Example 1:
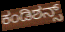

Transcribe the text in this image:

ಕಂಡಿಶನ್ಸ್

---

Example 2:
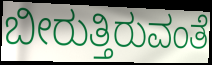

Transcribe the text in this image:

ಬೀರುತ್ತಿರುವಂತೆ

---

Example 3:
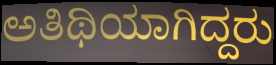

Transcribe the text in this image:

ಅತಿಥಿಯಾಗಿದ್ದರು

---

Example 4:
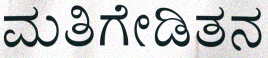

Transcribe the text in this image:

ಮತಿಗೇಡಿತನ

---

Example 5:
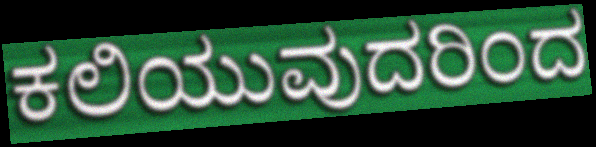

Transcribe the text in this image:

ಕಲಿಯುವುದರಿಂದ